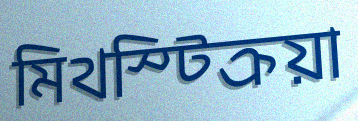
মিথস্ট্ক্রিয়া